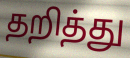
தறித்து